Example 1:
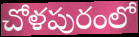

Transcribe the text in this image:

చోళపురంలో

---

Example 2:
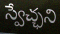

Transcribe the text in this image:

స్వేచ్ఛని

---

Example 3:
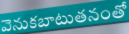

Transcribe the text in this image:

వెనుకబాటుతనంతో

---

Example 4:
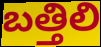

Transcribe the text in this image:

బత్తిలి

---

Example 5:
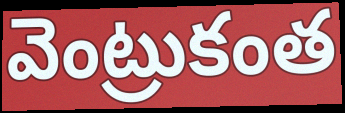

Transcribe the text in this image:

వెంట్రుకంత